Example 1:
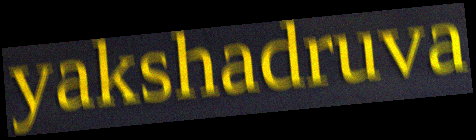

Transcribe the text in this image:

yakshadruva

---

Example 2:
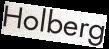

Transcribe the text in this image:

Holberg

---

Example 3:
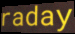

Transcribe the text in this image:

raday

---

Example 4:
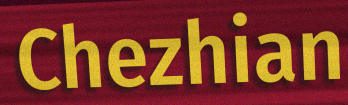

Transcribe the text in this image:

Chezhian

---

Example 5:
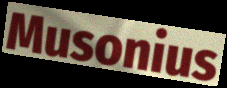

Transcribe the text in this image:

Musonius